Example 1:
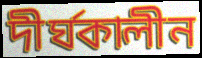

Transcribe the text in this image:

দীৰ্ঘকালীন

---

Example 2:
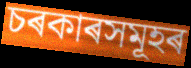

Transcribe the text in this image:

চৰকাৰসমূহৰ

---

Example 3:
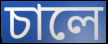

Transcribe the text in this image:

চালে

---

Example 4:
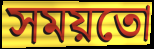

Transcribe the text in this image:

সময়তো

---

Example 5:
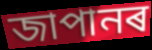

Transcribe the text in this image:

জাপানৰ